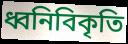
ধ্বনিবিকৃতি